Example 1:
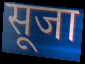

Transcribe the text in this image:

सूजा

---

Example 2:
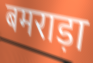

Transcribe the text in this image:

बमराड़ा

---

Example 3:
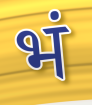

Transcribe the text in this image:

भं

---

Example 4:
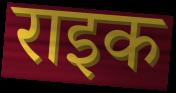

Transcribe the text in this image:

राइक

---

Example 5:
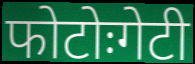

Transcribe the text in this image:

फोटोःगेटी